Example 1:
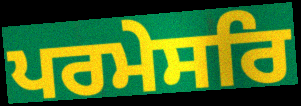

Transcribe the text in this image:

ਪਰਮੇਸਰਿ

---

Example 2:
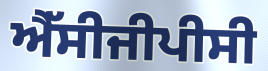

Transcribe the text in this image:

ਐੱਸੀਜੀਪੀਸੀ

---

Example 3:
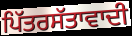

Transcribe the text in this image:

ਪਿੱਤਰਸੱਤਾਵਾਦੀ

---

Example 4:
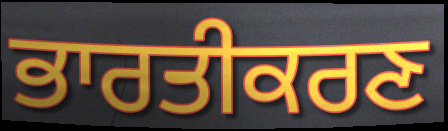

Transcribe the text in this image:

ਭਾਰਤੀਕਰਣ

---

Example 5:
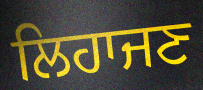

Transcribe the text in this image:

ਲਿਹਾਜਣ